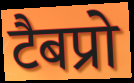
टैबप्रो